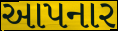
આપનાર